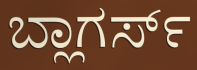
ಬ್ಲಾಗರ್ಸ್